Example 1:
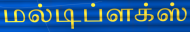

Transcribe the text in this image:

மல்டிப்ளக்ஸ்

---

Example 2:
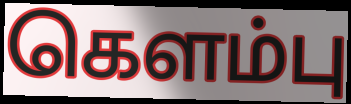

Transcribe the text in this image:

கௌம்பு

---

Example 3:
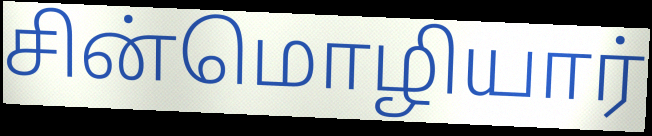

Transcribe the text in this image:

சின்மொழியார்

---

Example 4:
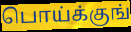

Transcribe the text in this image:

பொய்க்குங்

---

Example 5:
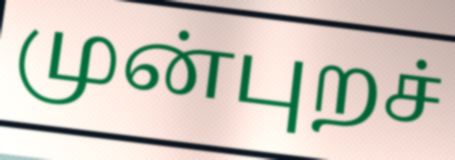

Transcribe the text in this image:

முன்புறச்